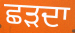
ਛੜਦਾ